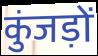
कुंजड़ों